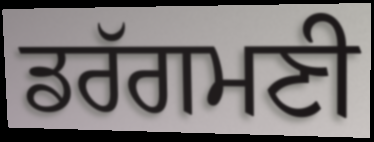
ਡਰੱਗਮਣੀ